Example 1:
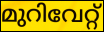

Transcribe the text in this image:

മുറിവേറ്റ്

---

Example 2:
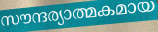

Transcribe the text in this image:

സൗന്ദര്യാത്മകമായ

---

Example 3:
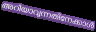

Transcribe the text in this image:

അറിയാവുന്നതിനേക്കാൾ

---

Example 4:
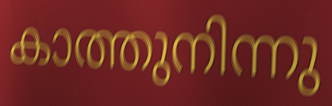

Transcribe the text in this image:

കാത്തുനിന്നു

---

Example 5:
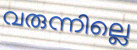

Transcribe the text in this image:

വരുന്നില്ലെ